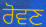
ਰੋਵਣ